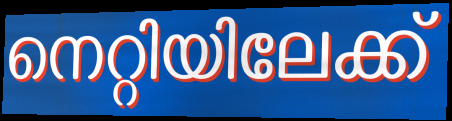
നെറ്റിയിലേക്ക്